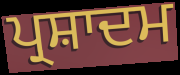
ਪ੍ਰਸ਼ਾਦਮ